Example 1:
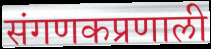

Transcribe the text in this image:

संगणकप्रणाली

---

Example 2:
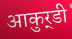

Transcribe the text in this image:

आकुर्डी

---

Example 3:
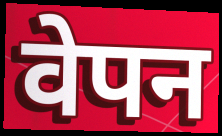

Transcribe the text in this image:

वेपन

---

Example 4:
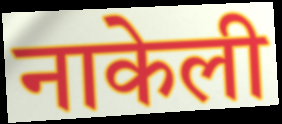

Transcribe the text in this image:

नाकेली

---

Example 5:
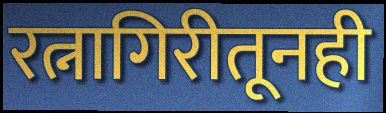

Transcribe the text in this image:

रत्नागिरीतूनही